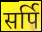
सर्पि